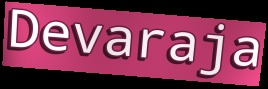
Devaraja